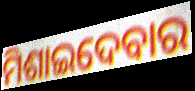
ମିଶାଇଦେବାର